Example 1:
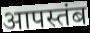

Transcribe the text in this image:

आपस्तंब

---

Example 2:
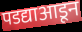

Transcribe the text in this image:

पडद्याआडून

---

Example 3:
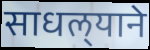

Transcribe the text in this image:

साधल्याने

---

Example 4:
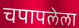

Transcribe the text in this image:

चपापलेला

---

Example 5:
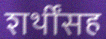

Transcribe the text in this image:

शर्थींसह